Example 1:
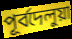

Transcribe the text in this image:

পূর্বদেলুয়া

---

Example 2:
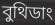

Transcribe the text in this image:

বুথিডাং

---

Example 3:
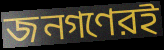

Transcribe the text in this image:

জনগণেরই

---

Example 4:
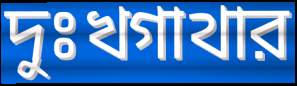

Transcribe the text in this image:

দুঃখগাথার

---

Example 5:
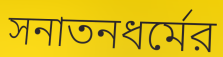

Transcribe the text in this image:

সনাতনধর্মের